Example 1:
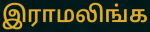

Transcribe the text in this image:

இராமலிங்க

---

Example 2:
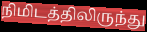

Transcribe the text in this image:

நிமிடத்திலிருந்து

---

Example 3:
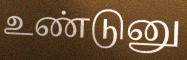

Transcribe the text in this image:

உண்டுனு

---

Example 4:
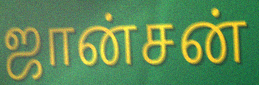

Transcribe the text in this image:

ஜான்சன்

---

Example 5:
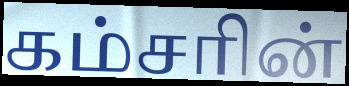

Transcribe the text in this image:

கம்சரின்